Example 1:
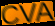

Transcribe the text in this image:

CVA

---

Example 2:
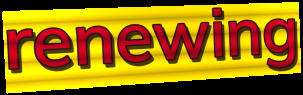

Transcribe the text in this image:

renewing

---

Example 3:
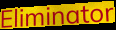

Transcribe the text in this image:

Eliminator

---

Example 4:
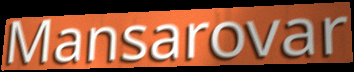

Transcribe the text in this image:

Mansarovar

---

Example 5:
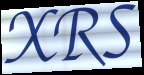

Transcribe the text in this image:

XRS